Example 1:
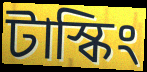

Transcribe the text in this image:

টাস্কিং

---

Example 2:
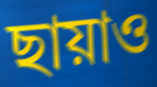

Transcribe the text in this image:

ছায়াও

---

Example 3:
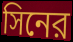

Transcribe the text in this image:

সিনের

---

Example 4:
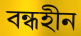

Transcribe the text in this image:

বন্ধহীন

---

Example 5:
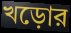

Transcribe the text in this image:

খড়োর